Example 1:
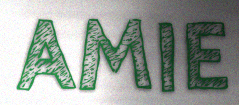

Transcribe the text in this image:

AMIE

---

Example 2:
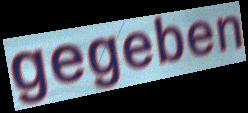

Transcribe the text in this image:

gegeben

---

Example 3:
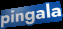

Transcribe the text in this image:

pingala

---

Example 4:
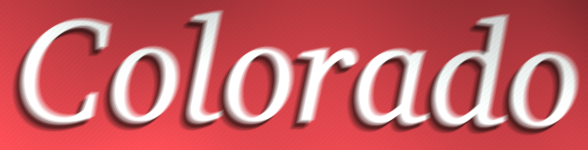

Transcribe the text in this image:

Colorado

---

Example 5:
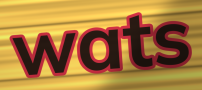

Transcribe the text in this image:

wats